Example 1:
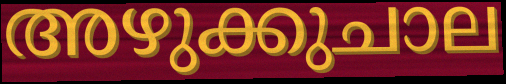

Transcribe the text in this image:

അഴുക്കുചാല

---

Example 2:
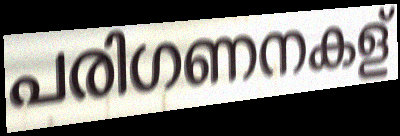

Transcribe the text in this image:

പരിഗണനകള്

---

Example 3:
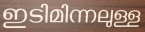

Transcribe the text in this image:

ഇടിമിന്നലുള്ള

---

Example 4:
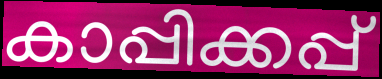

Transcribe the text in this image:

കാപ്പിക്കപ്പ്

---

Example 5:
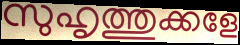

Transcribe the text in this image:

സുഹൃത്തുക്കളേ